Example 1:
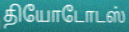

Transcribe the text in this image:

தியோடோடஸ்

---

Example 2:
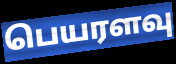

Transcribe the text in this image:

பெயரளவு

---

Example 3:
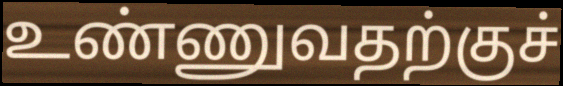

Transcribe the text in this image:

உண்ணுவதற்குச்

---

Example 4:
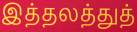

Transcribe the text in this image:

இத்தலத்துத்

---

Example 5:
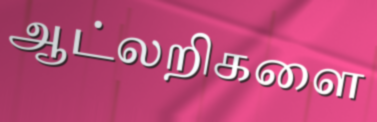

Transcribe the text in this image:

ஆட்லறிகளை